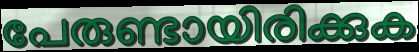
പേരുണ്ടായിരിക്കുക